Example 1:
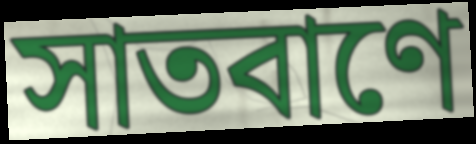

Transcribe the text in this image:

সাতবাণে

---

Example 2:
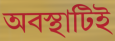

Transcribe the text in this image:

অবস্থাটিই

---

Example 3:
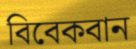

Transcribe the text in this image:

বিবেকবান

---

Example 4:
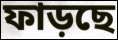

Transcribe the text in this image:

ফাড়ছে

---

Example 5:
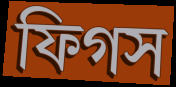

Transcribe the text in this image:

ফিগস